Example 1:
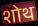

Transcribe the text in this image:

शोथ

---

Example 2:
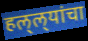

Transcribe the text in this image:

हल्ल्यांचा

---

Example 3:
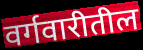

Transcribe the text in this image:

वर्गवारीतील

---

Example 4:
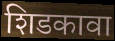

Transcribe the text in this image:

शिडकावा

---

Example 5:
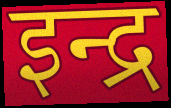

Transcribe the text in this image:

इन्द्र